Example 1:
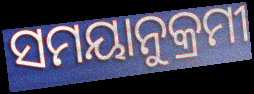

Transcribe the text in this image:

ସମୟାନୁକ୍ରମୀ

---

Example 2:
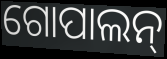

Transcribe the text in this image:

ଗୋପାଲନ୍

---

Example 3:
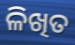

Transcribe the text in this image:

ଳିଖିତ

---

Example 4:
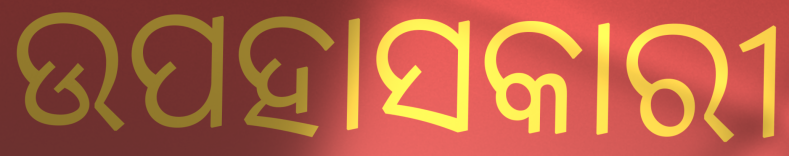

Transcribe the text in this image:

ଉପହାସକାରୀ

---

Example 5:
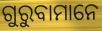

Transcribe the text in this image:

ଗୁରୁବାମାନେ